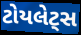
ટોયલેટ્સ